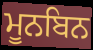
ਮੂਨਬਿਨ